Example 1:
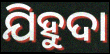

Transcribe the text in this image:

ଯିହୁଦା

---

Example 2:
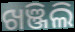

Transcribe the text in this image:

ଖଞ୍ଜିଲି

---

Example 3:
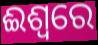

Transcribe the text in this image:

ଈଶ୍ଵରେ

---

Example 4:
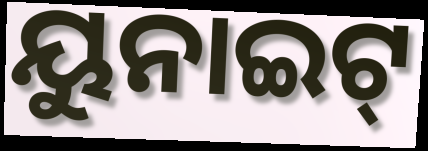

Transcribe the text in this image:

ୟୁନାଇଟ୍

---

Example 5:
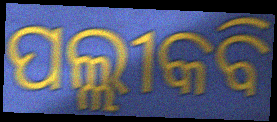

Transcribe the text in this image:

ପଲ୍ଲୀକବି